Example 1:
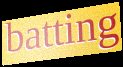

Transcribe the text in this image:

batting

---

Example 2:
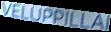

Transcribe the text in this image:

VELUPPILLAI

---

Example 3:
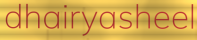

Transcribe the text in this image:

dhairyasheel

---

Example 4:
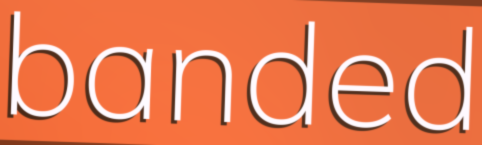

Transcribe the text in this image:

banded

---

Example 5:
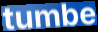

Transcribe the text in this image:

tumbe